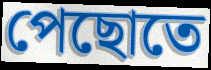
পেছোতে